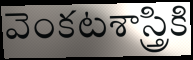
వెంకటశాస్త్రికి